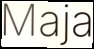
Maja